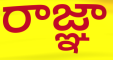
రాజ్ఞా